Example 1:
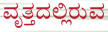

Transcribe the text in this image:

ವೃತ್ತದಲ್ಲಿರುವ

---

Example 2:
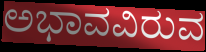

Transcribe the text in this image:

ಅಭಾವವಿರುವ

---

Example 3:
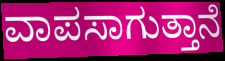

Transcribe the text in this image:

ವಾಪಸಾಗುತ್ತಾನೆ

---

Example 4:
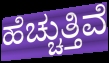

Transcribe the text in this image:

ಹೆಚ್ಚುತ್ತಿವೆ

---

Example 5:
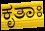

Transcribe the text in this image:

ಕೃತಾಃ